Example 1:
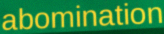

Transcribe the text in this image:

abomination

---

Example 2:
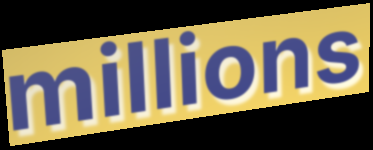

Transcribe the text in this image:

millions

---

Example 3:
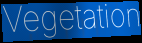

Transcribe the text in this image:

Vegetation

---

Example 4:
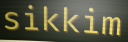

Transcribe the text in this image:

sikkim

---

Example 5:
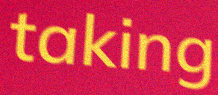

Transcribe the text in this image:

taking